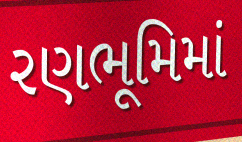
રણભૂમિમાં